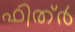
ഫിത്ർ